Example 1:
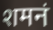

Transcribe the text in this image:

शमनं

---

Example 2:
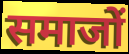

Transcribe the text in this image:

समाजों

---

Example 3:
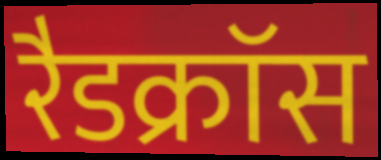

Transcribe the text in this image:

रैडक्रॉस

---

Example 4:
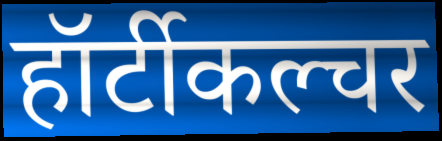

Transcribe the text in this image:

हॉर्टीकल्चर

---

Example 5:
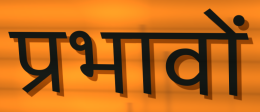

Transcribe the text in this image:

प्रभावों